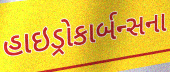
હાઇડ્રોકાર્બન્સના